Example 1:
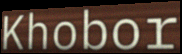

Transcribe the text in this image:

Khobor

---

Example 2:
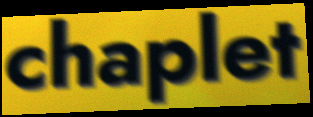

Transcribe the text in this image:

chaplet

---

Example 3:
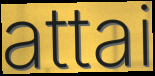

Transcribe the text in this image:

attai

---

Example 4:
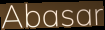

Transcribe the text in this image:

Abasar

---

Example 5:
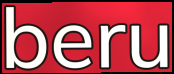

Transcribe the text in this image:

beru